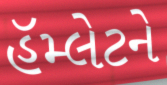
હૅમ્લેટને